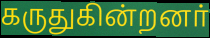
கருதுகின்றனர்